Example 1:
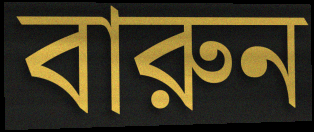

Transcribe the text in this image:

বারুন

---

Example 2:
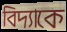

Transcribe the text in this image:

বিদ্যাকে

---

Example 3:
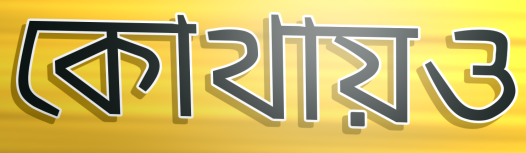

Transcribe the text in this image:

কোথায়ও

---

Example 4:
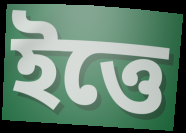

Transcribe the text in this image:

ইত্তে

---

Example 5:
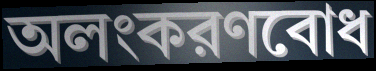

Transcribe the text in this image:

অলংকরণবোধ